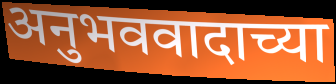
अनुभववादाच्या